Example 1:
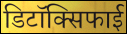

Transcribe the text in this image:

डिटॉक्सिफाई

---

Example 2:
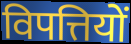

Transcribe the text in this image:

विपत्तियों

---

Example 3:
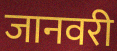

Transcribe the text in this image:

जानवरी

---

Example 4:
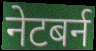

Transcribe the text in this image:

नेटबर्न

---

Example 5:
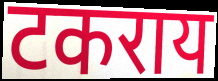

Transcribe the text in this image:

टकराय